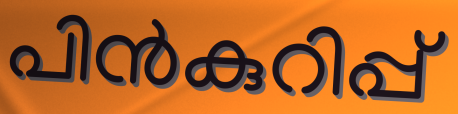
പിൻകുറിപ്പ്